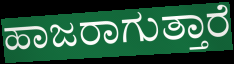
ಹಾಜರಾಗುತ್ತಾರೆ